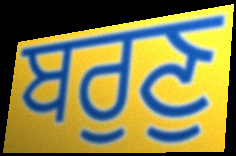
ਬਰੁਣੁ